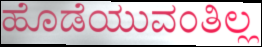
ಹೊಡೆಯುವಂತಿಲ್ಲ